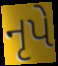
નૃપે